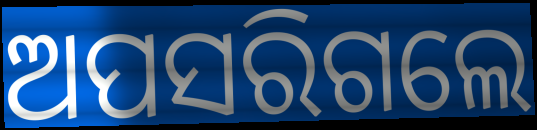
ଅପସରିଗଲେ